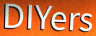
DIYers